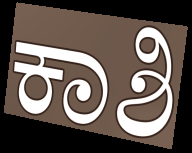
ಕಾಶಿ